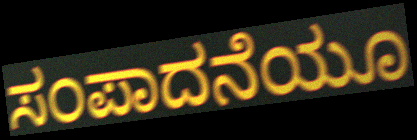
ಸಂಪಾದನೆಯೂ